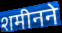
शमीनने